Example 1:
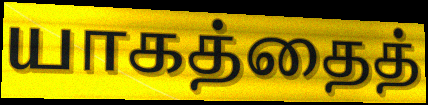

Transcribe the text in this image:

யாகத்தைத்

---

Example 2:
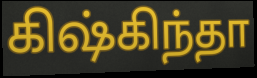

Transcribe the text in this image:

கிஷ்கிந்தா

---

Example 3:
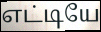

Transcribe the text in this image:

எட்டியே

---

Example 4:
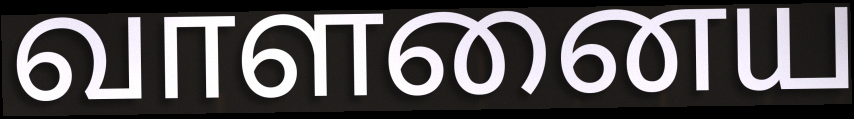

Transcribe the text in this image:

வாளனைய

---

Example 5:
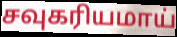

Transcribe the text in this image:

சவுகரியமாய்